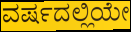
ವರ್ಷದಲ್ಲಿಯೇ